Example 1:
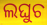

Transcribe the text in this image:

ଲଘୁଚ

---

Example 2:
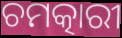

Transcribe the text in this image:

ଚମତ୍କାରୀ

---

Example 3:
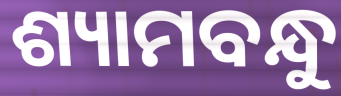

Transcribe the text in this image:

ଶ୍ୟାମବନ୍ଧୁ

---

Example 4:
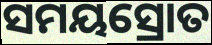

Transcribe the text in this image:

ସମୟସ୍ରୋତ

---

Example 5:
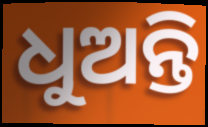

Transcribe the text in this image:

ଧୁଅନ୍ତି